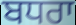
ਬਧਰਾ